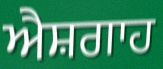
ਐਸ਼ਗਾਹ